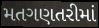
મતગણતરીમાં